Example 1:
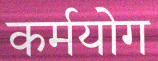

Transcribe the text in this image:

कर्मयोग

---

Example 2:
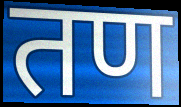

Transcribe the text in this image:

तण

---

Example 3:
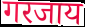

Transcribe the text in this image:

गरजाय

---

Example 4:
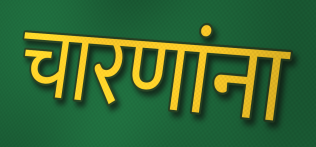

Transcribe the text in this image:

चारणांना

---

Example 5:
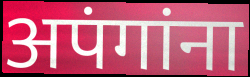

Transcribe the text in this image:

अपंगांना